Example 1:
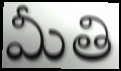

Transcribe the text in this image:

మీతి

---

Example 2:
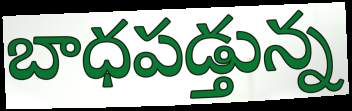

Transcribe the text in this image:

బాధపడ్తున్న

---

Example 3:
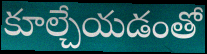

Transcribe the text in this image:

కూల్చేయడంతో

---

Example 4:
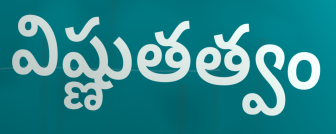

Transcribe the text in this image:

విష్ణుతత్వం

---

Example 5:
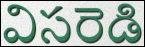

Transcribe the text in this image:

విసరెడి